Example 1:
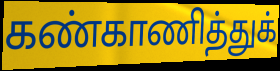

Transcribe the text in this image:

கண்காணித்துக்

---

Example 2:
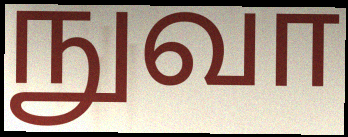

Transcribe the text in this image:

நுவா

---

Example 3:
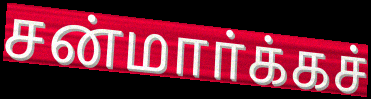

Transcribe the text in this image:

சன்மார்க்கச்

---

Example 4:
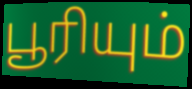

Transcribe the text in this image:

பூரியும்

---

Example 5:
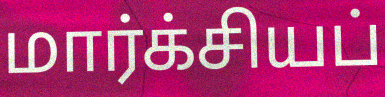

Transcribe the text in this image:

மார்க்சியப்